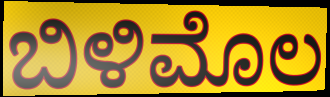
ಬಿಳಿಮೊಲ